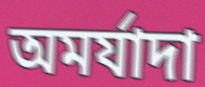
অমর্যাদা